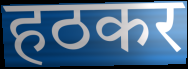
हठकर